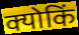
क्योकिं